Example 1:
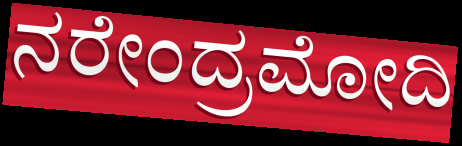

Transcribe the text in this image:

ನರೇಂದ್ರಮೋದಿ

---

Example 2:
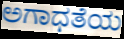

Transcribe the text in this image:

ಅಗಾಧತೆಯ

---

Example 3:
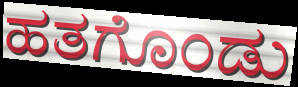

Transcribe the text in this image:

ಹತಗೊಂಡು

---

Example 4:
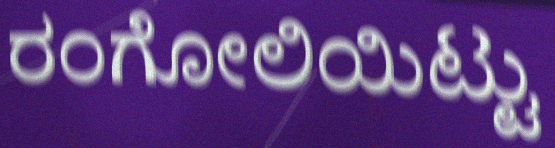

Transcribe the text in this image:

ರಂಗೋಲಿಯಿಟ್ಟು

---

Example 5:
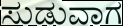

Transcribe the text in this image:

ಸುಡುವಾಗ